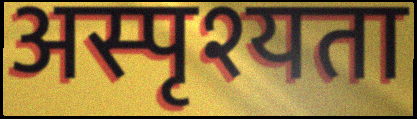
अस्पृश्यता